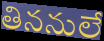
తిననులే